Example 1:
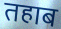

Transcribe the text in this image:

तहाब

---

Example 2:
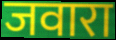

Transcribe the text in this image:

जवारा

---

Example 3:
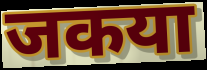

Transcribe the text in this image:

जकया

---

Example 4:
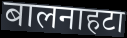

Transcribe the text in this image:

बालनाहटा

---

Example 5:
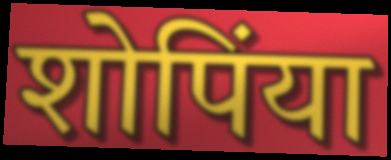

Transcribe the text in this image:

शोपिंया